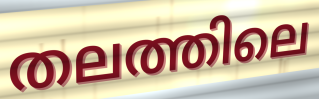
തലത്തിലെ